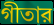
গীতার